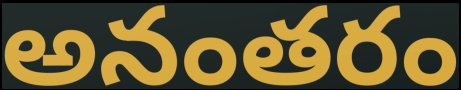
అనంతరం